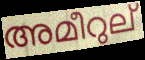
അമീറുല്